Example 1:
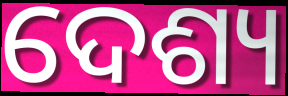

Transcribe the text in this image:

ଦେଶ୍ୟ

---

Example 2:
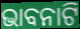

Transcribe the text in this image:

ଭାବନାଟି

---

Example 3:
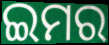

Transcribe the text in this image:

ଇମର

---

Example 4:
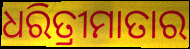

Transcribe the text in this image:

ଧରିତ୍ରୀମାତାର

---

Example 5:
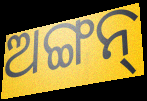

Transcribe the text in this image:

ଅଙ୍ଗନ୍